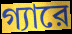
গ্যারে